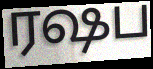
ரஷப